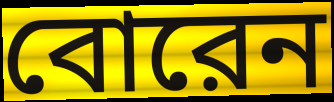
বোরেন